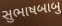
સુભાષબાબુ